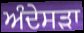
ਅੰਦੇਸੜਾ